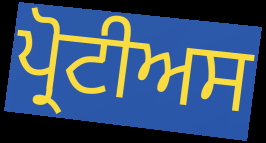
ਪ੍ਰੋਟੀਅਸ